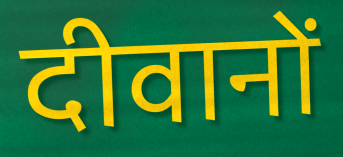
दीवानों